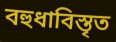
বহুধাবিস্তৃত